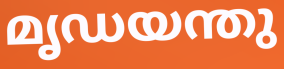
മൃഡയന്തു